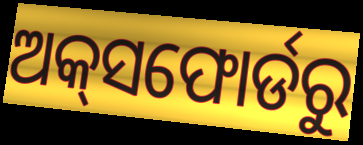
ଅକ୍‌ସଫୋର୍ଡରୁ